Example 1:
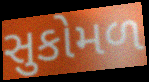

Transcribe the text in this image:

સુકોમળ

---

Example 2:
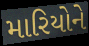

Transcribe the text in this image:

મારિયોને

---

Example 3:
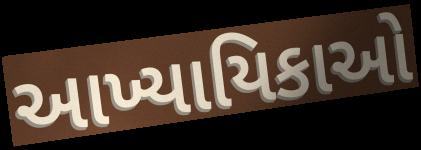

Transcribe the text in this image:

આખ્યાયિકાઓ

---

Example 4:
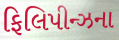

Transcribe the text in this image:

ફિલિપીન્ઝના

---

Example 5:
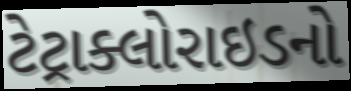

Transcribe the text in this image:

ટેટ્રાક્લોરાઇડનો